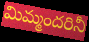
మిమ్మందరినీ